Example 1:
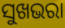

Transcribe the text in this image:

ସୁଖଭରା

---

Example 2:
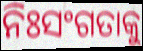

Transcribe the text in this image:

ନିଃସଂଗତାକୁ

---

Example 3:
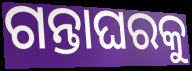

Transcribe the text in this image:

ଗନ୍ତାଘରକୁ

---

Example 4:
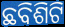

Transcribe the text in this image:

ଛବିଶିଟି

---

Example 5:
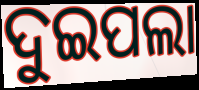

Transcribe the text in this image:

ଦୁଇପଲା